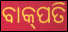
ବାକ୍‌ପତି